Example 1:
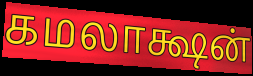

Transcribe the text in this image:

கமலாக்ஷன்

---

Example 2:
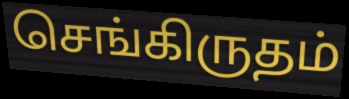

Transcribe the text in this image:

செங்கிருதம்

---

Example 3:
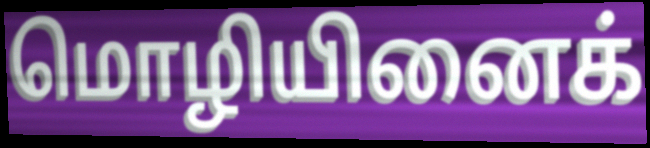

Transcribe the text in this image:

மொழியினைக்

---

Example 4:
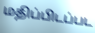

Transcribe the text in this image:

மதிப்பிடப்பட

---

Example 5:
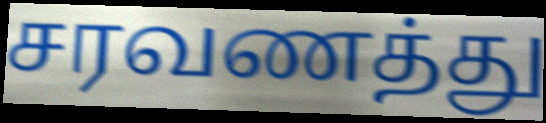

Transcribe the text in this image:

சரவணத்து